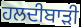
ਹਲਦੀਬਾੜੀ